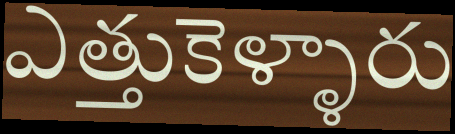
ఎత్తుకెళ్ళారు